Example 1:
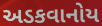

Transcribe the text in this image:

અડકવાનોય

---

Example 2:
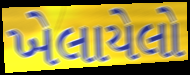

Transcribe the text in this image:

ખેલાયેલો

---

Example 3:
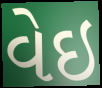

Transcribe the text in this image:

વેઇ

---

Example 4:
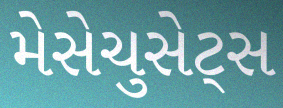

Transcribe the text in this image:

મેસેચુસેટ્સ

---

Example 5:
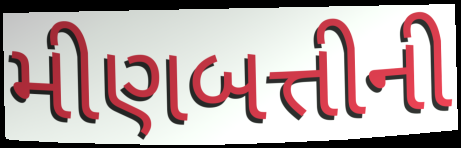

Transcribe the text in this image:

મીણબત્તીની